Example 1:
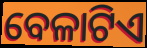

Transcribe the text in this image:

ବେଳାଟିଏ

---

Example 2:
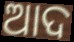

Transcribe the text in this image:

ଆଦ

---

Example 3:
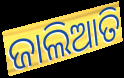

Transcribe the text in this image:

ଜାଲିଆତି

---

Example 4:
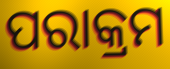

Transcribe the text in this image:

ପରାକ୍ରମ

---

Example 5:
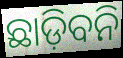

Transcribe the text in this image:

ଛାଡ଼ିବନି